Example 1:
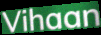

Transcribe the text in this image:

Vihaan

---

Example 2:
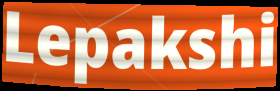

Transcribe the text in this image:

Lepakshi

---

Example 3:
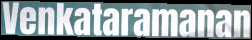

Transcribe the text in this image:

Venkataramanan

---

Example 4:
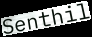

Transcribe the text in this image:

Senthil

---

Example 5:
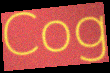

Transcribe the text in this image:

Cog